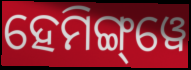
ହେମିଙ୍ଗ୍‌ୱେ